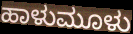
ಹಾಳುಮೂಳು